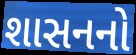
શાસનનો